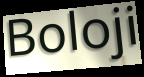
Boloji